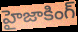
హైజాకింగ్